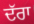
ਦੱਰਾ